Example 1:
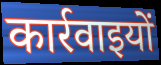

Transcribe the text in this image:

कार्रवाइयों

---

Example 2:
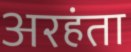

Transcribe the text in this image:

अरहंता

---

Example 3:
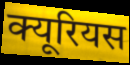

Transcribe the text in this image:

क्यूरियस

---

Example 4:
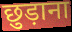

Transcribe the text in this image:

छुड़ाना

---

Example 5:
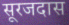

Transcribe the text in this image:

सूरजदास